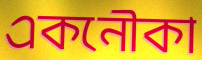
একনৌকা